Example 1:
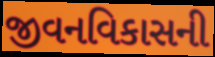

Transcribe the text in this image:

જીવનવિકાસની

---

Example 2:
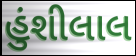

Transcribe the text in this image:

હુંશીલાલ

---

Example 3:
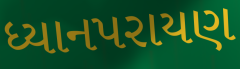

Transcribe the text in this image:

ધ્યાનપરાયણ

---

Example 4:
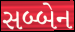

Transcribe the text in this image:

સબ્બેન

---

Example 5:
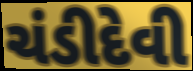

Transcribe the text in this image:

ચંડીદેવી